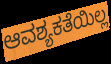
ಆವಶ್ಯಕತೆಯಿಲ್ಲ